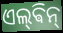
ଏଲ୍‌ଵିନ୍